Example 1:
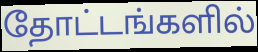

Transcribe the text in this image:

தோட்டங்களில்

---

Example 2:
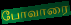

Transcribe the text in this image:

போவாரை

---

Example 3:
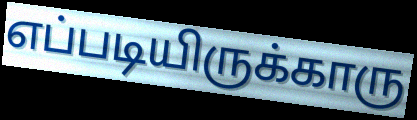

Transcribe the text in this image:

எப்படியிருக்காரு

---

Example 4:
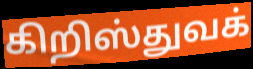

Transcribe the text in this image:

கிறிஸ்துவக்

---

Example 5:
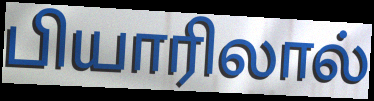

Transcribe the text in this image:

பியாரிலால்